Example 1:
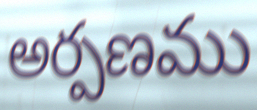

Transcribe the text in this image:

అర్పణము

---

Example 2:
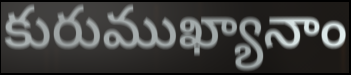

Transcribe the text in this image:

కురుముఖ్యానాం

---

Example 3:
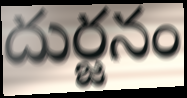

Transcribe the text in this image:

దుర్జనం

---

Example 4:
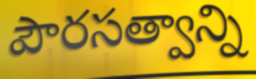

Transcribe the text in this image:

పౌరసత్వాన్ని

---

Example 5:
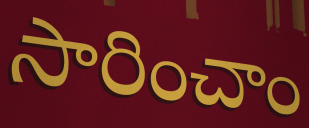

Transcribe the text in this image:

సారించాం